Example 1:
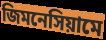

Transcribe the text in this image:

জিমনেসিয়ামে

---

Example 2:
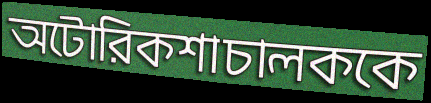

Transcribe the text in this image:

অটোরিকশাচালককে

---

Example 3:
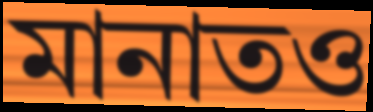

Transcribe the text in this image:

মানাতও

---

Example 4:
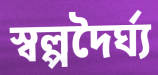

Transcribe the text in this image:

স্বল্পদৈর্ঘ্য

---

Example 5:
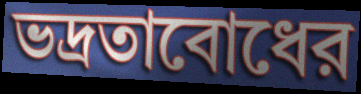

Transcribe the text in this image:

ভদ্রতাবোধের